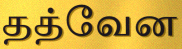
தத்வேன